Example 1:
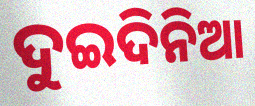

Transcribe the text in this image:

ଦୁଇଦିନିଆ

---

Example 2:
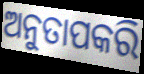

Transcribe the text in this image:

ଅନୁତାପକରି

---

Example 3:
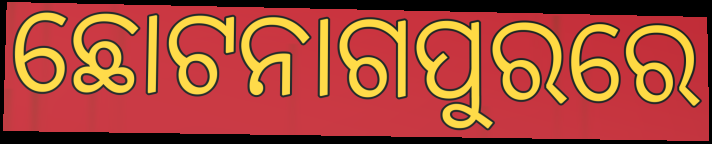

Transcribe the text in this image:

ଛୋଟନାଗପୁରରେ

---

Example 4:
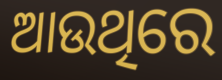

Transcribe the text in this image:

ଆଉଥିରେ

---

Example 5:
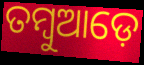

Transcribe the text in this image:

ତମ୍ବୁଆଡ଼େ